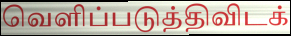
வெளிப்படுத்திவிடக்